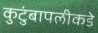
कुटुंबापलीकडे